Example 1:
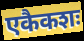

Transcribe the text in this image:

एकैकशः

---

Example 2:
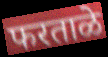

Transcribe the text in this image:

फरताळे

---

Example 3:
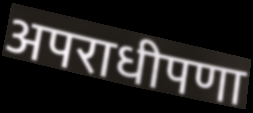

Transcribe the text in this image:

अपराधीपणा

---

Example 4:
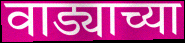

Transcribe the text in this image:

वाड्याच्या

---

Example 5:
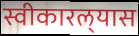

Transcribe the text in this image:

स्वीकारल्यास